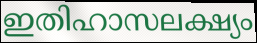
ഇതിഹാസലക്ഷ്യം